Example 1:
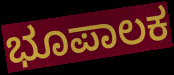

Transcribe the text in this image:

ಭೂಪಾಲಕ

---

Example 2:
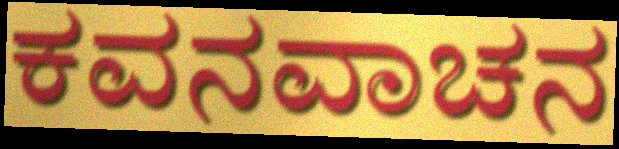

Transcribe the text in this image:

ಕವನವಾಚನ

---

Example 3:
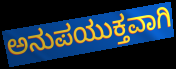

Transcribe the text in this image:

ಅನುಪಯುಕ್ತವಾಗಿ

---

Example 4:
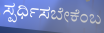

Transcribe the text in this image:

ಸ್ಪರ್ಧಿಸಬೇಕೆಂಬ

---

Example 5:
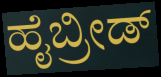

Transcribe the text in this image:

ಹೈಬ್ರೀಡ್